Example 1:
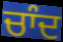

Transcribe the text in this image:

ਚਾੰਦ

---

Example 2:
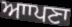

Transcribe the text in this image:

ਆਾਪਣਾ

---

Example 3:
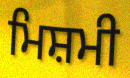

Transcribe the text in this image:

ਮਿਸ਼ਮੀ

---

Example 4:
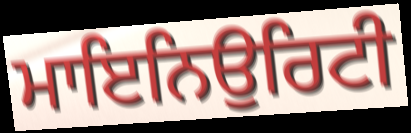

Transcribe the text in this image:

ਮਾਇਨਿਉਰਿਟੀ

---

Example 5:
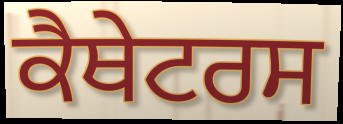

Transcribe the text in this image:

ਕੈਥੇਟਰਸ